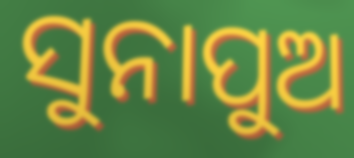
ସୁନାପୁଅ